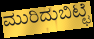
ಮುರಿದುಬಿಟ್ಟೆ